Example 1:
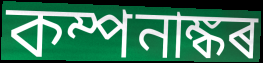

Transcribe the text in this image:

কম্পনাঙ্কৰ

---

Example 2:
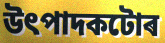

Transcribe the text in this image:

উৎপাদকটোৰ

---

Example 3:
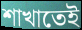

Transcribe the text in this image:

শাখাতেই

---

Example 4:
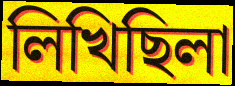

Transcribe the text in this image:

লিখিছিলা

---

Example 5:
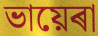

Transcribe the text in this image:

ভায়েৰা